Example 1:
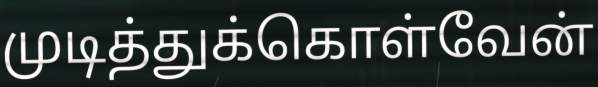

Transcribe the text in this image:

முடித்துக்கொள்வேன்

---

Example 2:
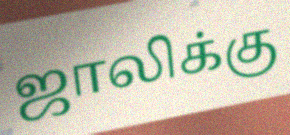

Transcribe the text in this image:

ஜாலிக்கு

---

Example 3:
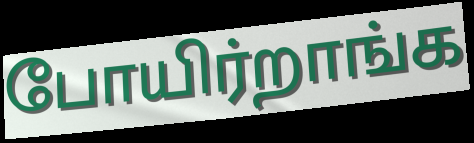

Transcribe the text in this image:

போயிர்றாங்க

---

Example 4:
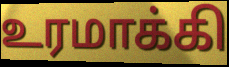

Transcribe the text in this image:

உரமாக்கி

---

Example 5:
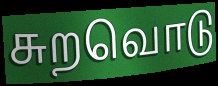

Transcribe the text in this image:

சுறவொடு